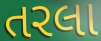
તરલા